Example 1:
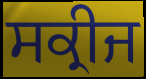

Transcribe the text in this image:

ਸਕ੍ਰੀਜ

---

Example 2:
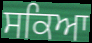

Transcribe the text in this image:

ਸਕਿਆ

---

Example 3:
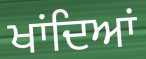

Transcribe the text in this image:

ਖਾਂਦਿਆਂ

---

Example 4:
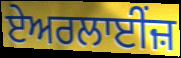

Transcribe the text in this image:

ਏਅਰਲਾਈਂਜ਼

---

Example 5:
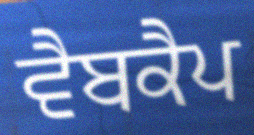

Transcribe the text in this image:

ਵੈਬਕੈਪ